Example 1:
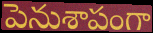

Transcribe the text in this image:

పెనుశాపంగా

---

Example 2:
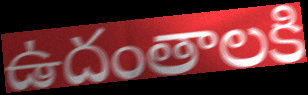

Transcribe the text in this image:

ఉదంతాలకి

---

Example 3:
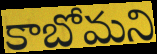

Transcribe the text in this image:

కాబోమని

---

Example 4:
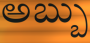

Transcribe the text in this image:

అబ్బు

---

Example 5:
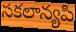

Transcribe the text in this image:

సకలాన్యపి